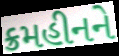
ક્રમહીનને